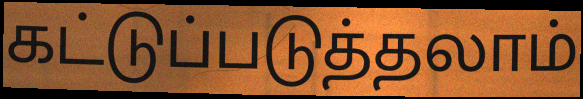
கட்டுப்படுத்தலாம்